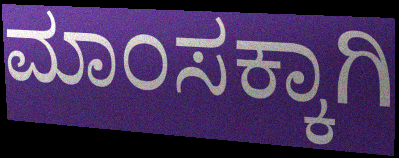
ಮಾಂಸಕ್ಕಾಗಿ